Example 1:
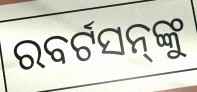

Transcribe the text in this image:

ରବର୍ଟସନ୍‌ଙ୍କୁ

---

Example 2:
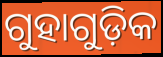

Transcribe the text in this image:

ଗୁହାଗୁଡ଼ିକ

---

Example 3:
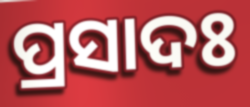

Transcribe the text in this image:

ପ୍ରସାଦଃ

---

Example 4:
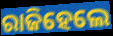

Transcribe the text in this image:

ରାଜିହେଲେ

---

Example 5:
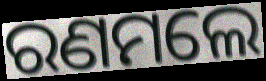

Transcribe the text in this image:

ରଣମଲେ